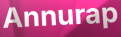
Annurap